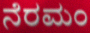
ನೆರಮಂ